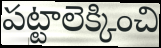
పట్టాలెక్కించి